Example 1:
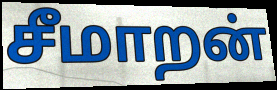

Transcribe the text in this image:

சீமாறன்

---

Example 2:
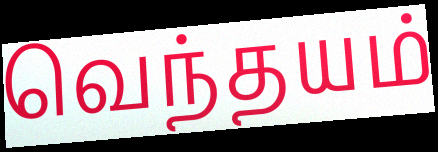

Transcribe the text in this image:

வெந்தயம்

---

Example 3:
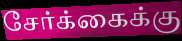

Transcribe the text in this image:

சேர்க்கைக்கு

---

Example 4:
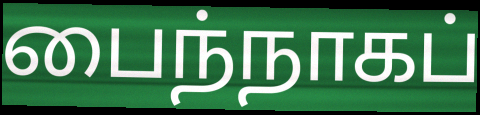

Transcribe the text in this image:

பைந்நாகப்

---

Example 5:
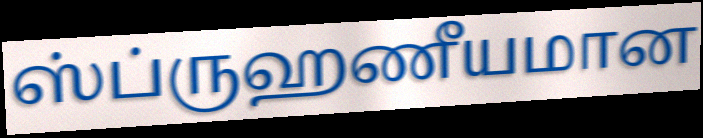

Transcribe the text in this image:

ஸ்ப்ருஹணீயமான